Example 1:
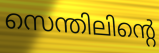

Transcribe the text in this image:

സെന്തിലിന്റെ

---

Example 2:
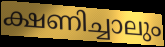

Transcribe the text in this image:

ക്ഷണിച്ചാലും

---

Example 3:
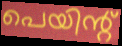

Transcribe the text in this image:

പെയിന്റ്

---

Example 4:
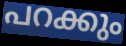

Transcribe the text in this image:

പറക്കും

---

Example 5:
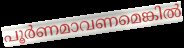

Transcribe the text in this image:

പൂർണമാവണമെങ്കിൽ